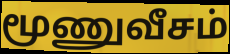
மூணுவீசம்